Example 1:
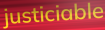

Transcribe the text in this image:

justiciable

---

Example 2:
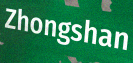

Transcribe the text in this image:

Zhongshan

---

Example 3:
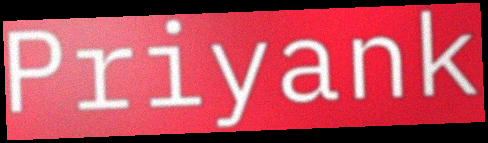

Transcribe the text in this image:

Priyank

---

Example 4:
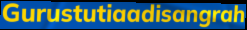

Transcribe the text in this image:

Gurustutiaadisangrah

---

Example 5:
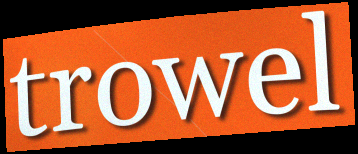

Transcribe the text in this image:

trowel